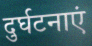
दुर्घटनाएं